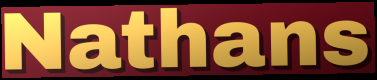
Nathans